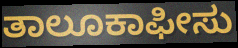
ತಾಲೂಕಾಫೀಸು